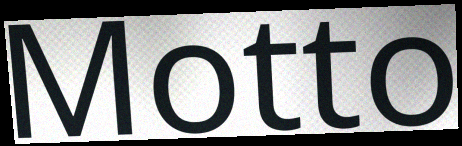
Motto